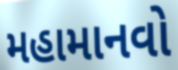
મહામાનવો